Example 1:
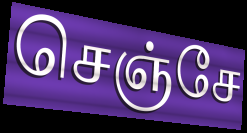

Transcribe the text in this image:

செஞ்சே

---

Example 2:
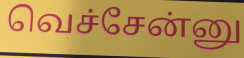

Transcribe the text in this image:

வெச்சேன்னு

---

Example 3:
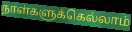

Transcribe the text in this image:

நாள்களுக்கெல்லாம்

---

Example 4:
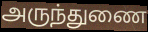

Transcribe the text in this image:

அருந்துணை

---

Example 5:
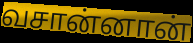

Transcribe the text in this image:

வசான்னான்